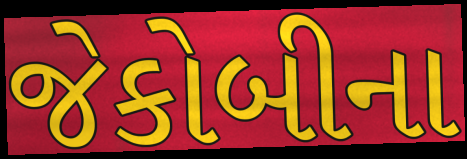
જેકોબીના